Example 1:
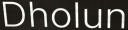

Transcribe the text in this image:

Dholun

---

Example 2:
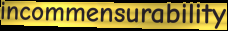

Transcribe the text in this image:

incommensurability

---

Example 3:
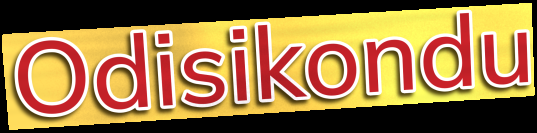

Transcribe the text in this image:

Odisikondu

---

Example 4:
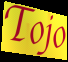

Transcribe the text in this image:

Tojo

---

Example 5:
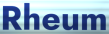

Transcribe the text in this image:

Rheum